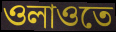
ওলাওতে